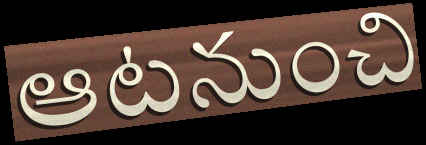
ఆటనుంచి